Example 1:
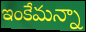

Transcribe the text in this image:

ఇంకేమన్నా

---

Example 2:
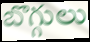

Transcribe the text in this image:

బొగ్గులు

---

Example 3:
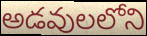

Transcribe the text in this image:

అడవులలోని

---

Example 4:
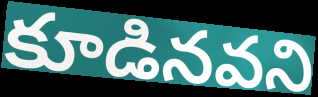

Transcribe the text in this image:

కూడినవని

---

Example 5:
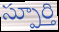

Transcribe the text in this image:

స్పూర్తి